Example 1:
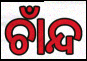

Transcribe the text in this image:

ଚାଁନ୍ଦ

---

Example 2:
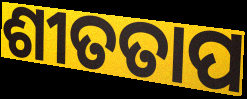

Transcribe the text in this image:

ଶୀତତାପ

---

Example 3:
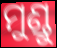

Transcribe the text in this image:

ମୁଣ୍ଡୁ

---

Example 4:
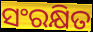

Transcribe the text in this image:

ସଂରକ୍ଷିତ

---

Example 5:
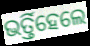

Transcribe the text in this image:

ଭର୍ତ୍ତିହେଲେ